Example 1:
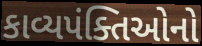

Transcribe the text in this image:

કાવ્યપંક્તિઓનો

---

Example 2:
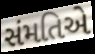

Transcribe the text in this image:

સંમતિએ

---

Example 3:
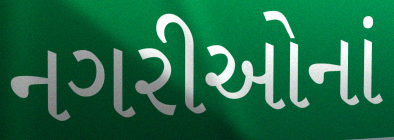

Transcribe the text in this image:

નગરીઓનાં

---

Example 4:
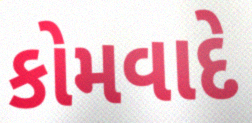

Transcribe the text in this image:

કોમવાદે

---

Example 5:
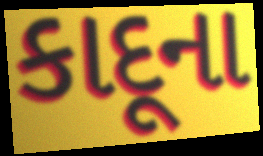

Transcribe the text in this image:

કાદૂના